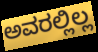
ಅವರಲ್ಲಿಲ್ಲ